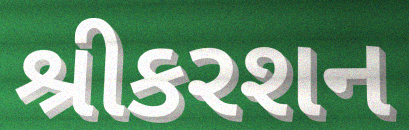
શ્રીકરશન